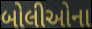
બોલીઓના